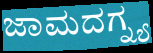
ಜಾಮದಗ್ನ್ಯ